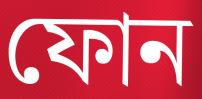
ফোন